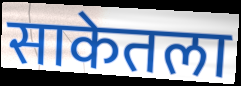
साकेतला